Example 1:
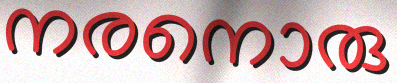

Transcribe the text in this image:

നരനൊരു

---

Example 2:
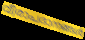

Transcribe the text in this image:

വീരാപദാനങ്ങൾ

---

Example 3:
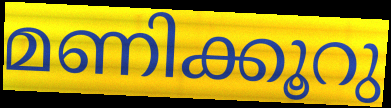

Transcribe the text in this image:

മണിക്കൂറു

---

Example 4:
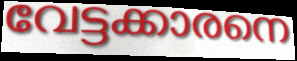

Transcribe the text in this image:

വേട്ടക്കാരനെ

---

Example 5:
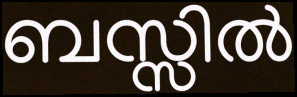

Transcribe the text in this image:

ബസ്സിൽ